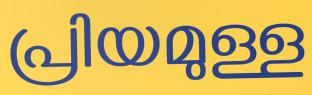
പ്രിയമുള്ള